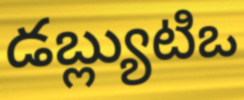
డబ్ల్యుటిఒ